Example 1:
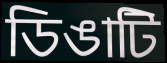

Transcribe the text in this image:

ডিঙাটি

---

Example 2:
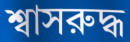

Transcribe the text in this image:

শ্বাসরুদ্ধ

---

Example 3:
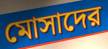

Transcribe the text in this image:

মোসাদের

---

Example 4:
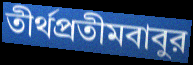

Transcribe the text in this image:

তীর্থপ্রতীমবাবুর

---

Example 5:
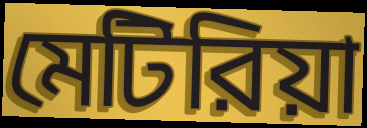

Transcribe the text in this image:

মেটিরিয়া